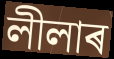
লীলাৰ